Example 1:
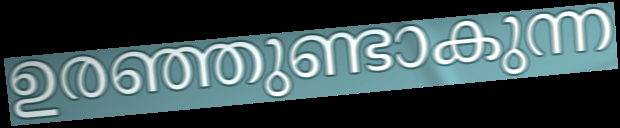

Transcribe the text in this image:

ഉരഞ്ഞുണ്ടാകുന്ന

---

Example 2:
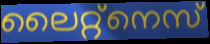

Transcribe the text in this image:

ലൈറ്റ്നെസ്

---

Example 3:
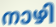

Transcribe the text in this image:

നാഴി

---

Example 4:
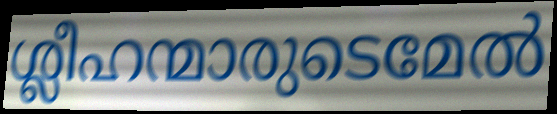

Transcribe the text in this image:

ശ്ലീഹന്മാരുടെമേൽ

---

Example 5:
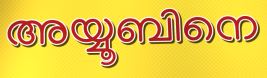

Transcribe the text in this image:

അയ്യൂബിനെ